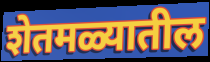
शेतमळ्यातील